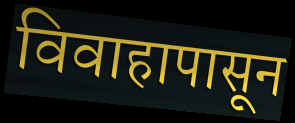
विवाहापासून